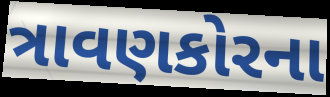
ત્રાવણકોરના